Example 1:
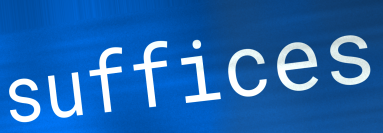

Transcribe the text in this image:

suffices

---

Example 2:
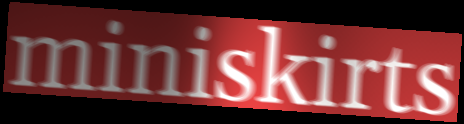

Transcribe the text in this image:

miniskirts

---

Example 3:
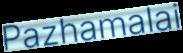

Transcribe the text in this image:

Pazhamalai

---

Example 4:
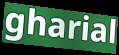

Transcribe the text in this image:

gharial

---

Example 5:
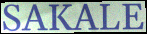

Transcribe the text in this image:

SAKALE